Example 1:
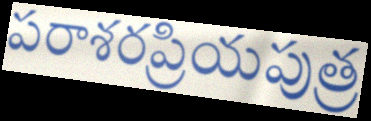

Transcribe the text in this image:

పరాశరప్రియపుత్ర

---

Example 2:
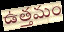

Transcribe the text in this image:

ఉత్తమం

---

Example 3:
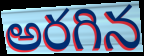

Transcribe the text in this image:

అరగిన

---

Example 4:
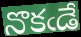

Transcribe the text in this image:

నొకఁడే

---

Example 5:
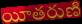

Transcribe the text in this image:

యీతరుణి